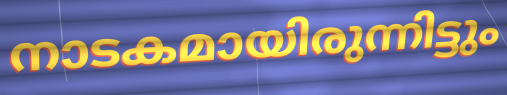
നാടകമായിരുന്നിട്ടും